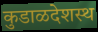
कुडाळदेशस्थ